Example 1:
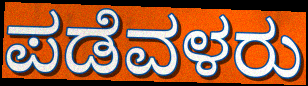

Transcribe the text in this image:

ಪಡೆವಳರು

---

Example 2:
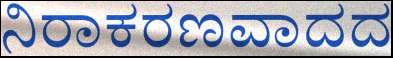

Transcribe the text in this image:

ನಿರಾಕರಣವಾದದ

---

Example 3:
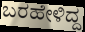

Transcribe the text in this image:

ಬರಹೇಳಿದ್ದ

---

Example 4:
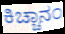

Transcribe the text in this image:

ಕಿಚ್ಚಾನಂ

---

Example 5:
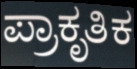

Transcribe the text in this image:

ಪ್ರಾಕೃತಿಕ